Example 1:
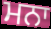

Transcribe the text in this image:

ਮਨਾ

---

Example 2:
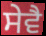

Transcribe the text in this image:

ਸੇਵੈ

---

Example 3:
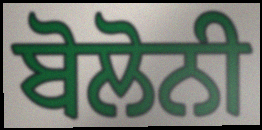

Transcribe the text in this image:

ਬੋਲੋਨੀ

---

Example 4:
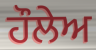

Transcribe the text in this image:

ਹੌਲੇਅ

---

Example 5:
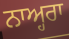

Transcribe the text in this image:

ਨਾਅ੍ਹਰਾ